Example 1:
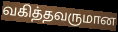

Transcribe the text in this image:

வகித்தவருமான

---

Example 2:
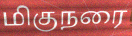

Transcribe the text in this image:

மிகுநரை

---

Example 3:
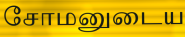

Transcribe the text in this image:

சோமனுடைய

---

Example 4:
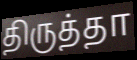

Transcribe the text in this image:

திருத்தா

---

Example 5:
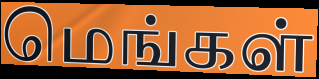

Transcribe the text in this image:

மெங்கள்